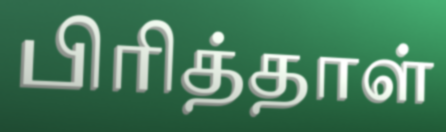
பிரித்தாள்